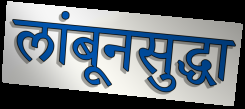
लांबूनसुद्धा